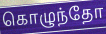
கொழுந்தோ